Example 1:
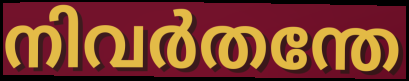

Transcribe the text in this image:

നിവർതന്തേ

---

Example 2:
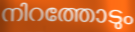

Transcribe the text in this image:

നിറത്തോടും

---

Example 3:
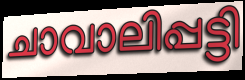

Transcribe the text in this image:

ചാവാലിപ്പട്ടി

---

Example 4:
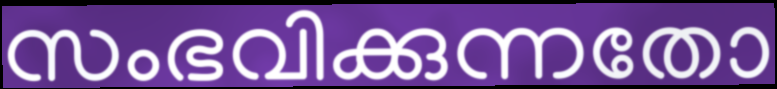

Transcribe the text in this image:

സംഭവിക്കുന്നതോ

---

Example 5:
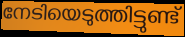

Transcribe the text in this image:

നേടിയെടുത്തിട്ടുണ്ട്